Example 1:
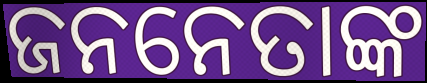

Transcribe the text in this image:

ଜନନେତାଙ୍କ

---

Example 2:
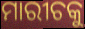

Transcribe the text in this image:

ମାରୀଚକୁ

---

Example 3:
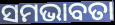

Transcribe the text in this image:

ସମଭାବତା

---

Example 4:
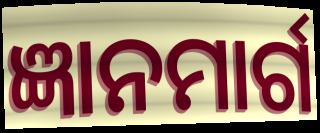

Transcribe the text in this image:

ଜ୍ଞାନମାର୍ଗ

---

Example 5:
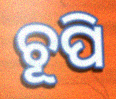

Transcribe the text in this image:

ଚୂପି